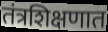
तंत्रशिक्षणात